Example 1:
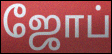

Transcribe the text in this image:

ஜோப்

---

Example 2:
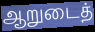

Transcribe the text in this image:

ஆறுடைத்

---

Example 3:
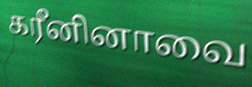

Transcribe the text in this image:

கரீனினாவை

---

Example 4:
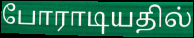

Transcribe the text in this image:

போராடியதில்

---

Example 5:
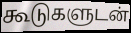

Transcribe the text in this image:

கூடுகளுடன்